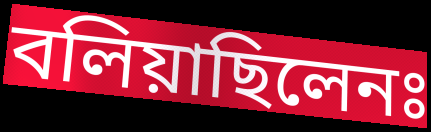
বলিয়াছিলেনঃ